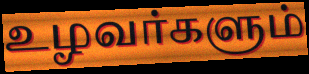
உழவர்களும்